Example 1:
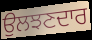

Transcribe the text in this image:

ਉਲਝਣਦਾਰ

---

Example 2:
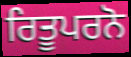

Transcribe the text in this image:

ਰਿਤੂਪਰਨੋ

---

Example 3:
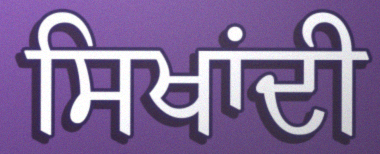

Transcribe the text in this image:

ਸਿਖਾਂਦੀ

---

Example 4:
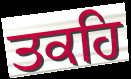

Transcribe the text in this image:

ਤਕਹਿ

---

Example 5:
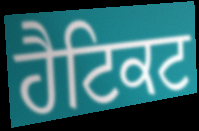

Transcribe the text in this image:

ਹੈਟਿਕਟ